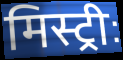
मिस्ट्रीः